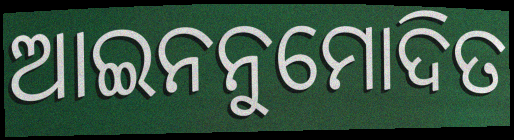
ଆଇନନୁମୋଦିତ